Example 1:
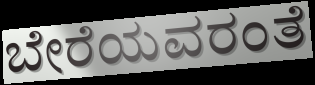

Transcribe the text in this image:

ಬೇರೆಯವರಂತೆ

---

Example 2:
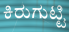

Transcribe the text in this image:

ಕಿರುಗುಟ್ಟಿ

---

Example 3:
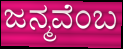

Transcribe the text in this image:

ಜನ್ಮವೆಂಬ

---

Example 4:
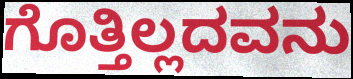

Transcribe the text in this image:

ಗೊತ್ತಿಲ್ಲದವನು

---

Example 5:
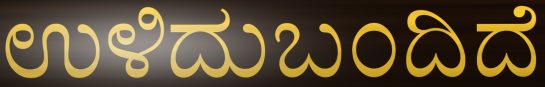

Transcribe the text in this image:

ಉಳಿದುಬಂದಿದೆ